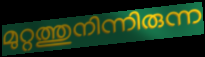
മുറ്റത്തുനിന്നിരുന്ന